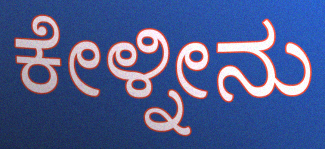
ಕೇಳ್ನೀನು